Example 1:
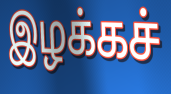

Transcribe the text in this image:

இழக்கச்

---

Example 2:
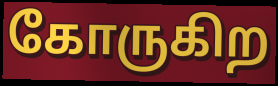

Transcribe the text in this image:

கோருகிற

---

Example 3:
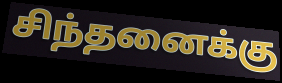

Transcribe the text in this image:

சிந்தனைக்கு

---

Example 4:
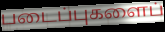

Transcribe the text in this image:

படைப்புகளைப்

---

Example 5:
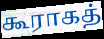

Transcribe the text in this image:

கூராகத்